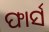
ଫାର୍ସ